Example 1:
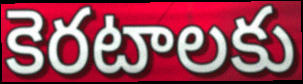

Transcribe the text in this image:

కెరటాలకు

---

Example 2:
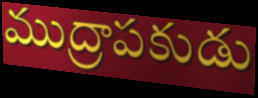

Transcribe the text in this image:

ముద్రాపకుడు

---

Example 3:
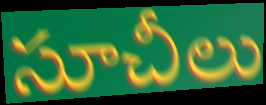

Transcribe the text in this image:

సూచీలు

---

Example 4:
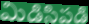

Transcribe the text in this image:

మిడిసిపడి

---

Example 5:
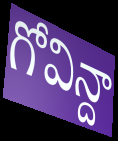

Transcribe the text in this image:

గోవిన్దా